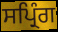
ਸਪ੍ਰਿੰਗ